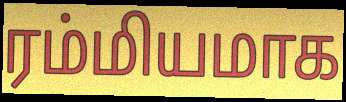
ரம்மியமாக